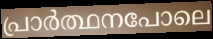
പ്രാർത്ഥനപോലെ